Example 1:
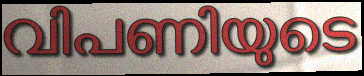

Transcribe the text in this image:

വിപണിയുടെ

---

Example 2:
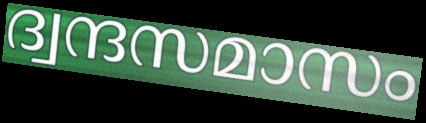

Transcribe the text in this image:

ദ്വന്ദസമാസം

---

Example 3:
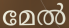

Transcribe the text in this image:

മേൽ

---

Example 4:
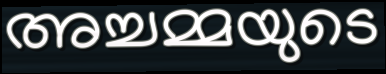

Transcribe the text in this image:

അച്ചമ്മയുടെ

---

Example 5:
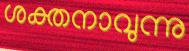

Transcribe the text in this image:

ശക്തനാവുന്നു